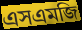
এসএমজি